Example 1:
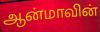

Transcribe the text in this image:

ஆன்மாவின்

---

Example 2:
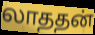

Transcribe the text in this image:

லாததன்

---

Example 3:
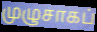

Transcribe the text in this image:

முழுசாகப்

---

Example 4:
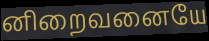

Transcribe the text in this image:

னிறைவனையே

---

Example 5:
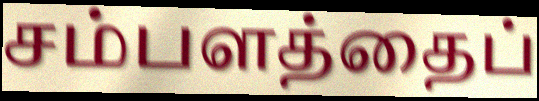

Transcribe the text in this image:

சம்பளத்தைப்